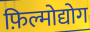
फ़िल्मोद्योग